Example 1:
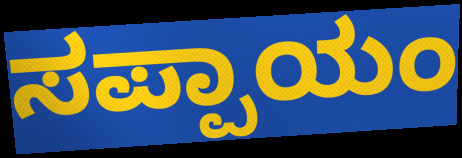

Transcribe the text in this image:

ಸಪ್ಪಾಯಂ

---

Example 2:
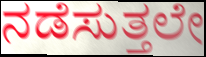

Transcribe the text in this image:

ನಡೆಸುತ್ತಲೇ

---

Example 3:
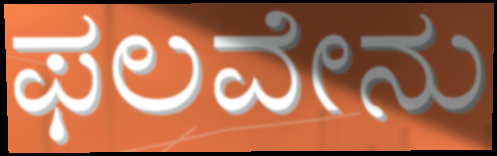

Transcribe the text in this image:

ಫಲವೇನು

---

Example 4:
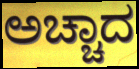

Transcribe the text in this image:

ಅಚ್ಚಾದ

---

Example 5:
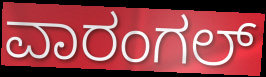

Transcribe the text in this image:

ವಾರಂಗಲ್